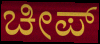
ಚೀಪ್